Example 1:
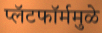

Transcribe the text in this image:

प्लॅटफॉर्ममुळे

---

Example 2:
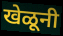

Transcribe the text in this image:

खेळूनी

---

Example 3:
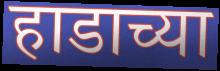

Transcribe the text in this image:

हाडाच्या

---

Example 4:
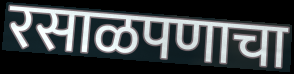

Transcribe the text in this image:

रसाळपणाचा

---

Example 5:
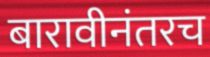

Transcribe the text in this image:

बारावीनंतरच